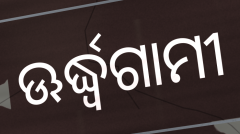
ଊର୍ଦ୍ଧ୍ୱଗାମୀ